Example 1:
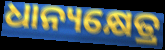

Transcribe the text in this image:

ଧାନ୍ୟକ୍ଷେତ୍ର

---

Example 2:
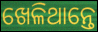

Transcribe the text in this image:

ଖେଳିଥାନ୍ତେ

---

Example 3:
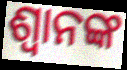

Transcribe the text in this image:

ଶ୍ବାନଙ୍କ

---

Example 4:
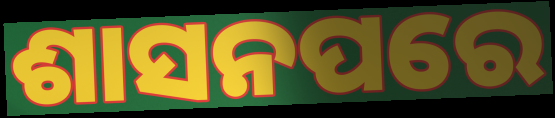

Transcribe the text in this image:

ଶାସନପରେ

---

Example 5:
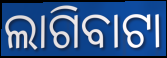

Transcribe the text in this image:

ଲାଗିବାଟା